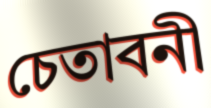
চেতাবনী